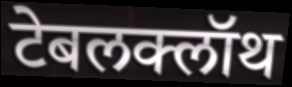
टेबलक्लॉथ